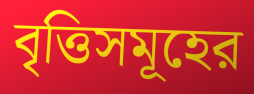
বৃত্তিসমূহের